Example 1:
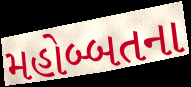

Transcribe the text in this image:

મહોબ્બતના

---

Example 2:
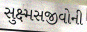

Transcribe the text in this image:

સુક્ષ્મસજીવોની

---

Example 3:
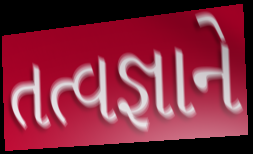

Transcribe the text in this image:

તત્વજ્ઞાને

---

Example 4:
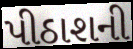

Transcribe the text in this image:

પીઠાશની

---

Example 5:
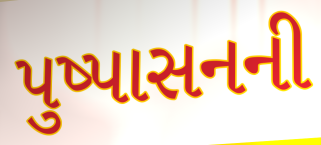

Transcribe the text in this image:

પુષ્પાસનની